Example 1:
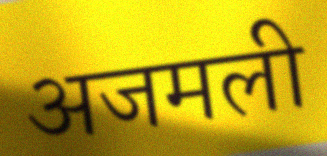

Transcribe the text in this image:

अजमली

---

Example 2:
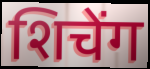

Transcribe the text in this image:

शिचेंग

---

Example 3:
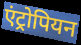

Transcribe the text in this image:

एंट्रोपियन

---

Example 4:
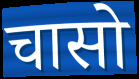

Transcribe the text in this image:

चासो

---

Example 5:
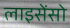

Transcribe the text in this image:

लाइसेंसो